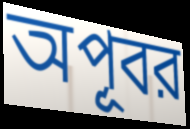
অপূবর